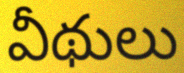
వీథులు